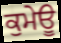
ਕੁਮੇਊ